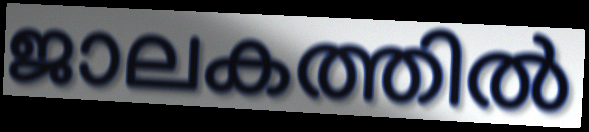
ജാലകത്തിൽ